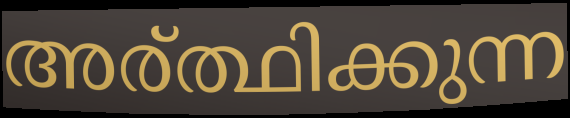
അര്ത്ഥിക്കുന്ന